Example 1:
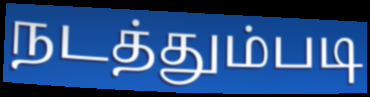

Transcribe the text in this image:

நடத்தும்படி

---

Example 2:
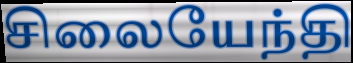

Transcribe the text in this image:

சிலையேந்தி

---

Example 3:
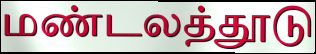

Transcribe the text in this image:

மண்டலத்தூடு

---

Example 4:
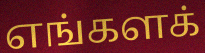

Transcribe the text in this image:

எங்களக்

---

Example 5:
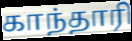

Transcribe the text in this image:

காந்தாரி